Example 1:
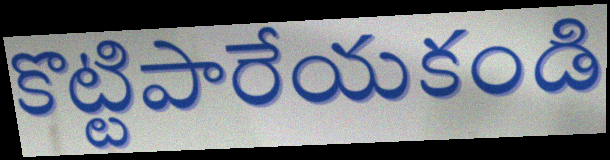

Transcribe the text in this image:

కొట్టిపారేయకండి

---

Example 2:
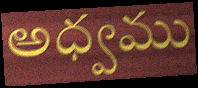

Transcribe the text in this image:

అధ్వము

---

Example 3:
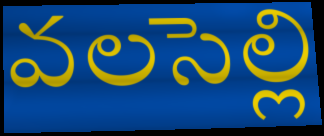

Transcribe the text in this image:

వలసెల్లి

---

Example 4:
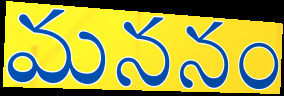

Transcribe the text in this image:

మననం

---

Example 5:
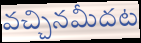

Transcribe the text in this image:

వచ్చినమీదట